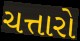
ચત્તારો